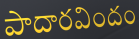
పాదారవిందం